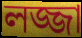
লজ্জা